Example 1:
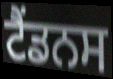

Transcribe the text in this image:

ਟੈਂਡਨਸ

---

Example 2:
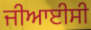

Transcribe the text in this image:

ਜੀਆਈਸੀ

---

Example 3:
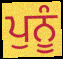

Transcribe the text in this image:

ਪੁਨੂੰ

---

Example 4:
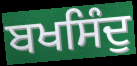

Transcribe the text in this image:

ਬਖਸਿੰਦੁ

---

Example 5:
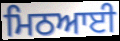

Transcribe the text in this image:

ਮਿਠਆਈ